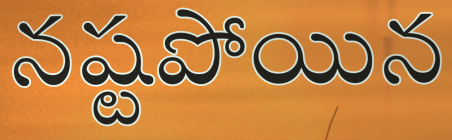
నష్టపోయిన